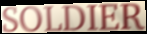
SOLDIER